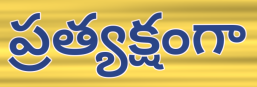
ప్రత్యక్షంగా